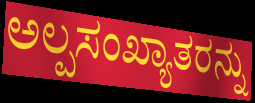
ಅಲ್ಪಸಂಖ್ಯಾತರನ್ನು